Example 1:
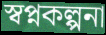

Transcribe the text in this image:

স্বপ্নকল্পনা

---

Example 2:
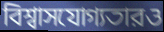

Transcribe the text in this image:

বিশ্বাসযোগ্যতারও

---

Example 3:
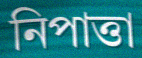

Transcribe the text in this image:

নিপাত্তা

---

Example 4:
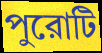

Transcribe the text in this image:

পুরোটি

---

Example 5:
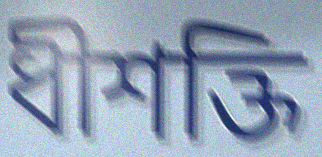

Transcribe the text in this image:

ধীশক্তি